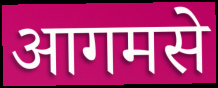
आगमसे